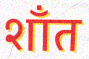
शाँत